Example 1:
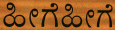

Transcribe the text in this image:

ಹೀಗೆಹೀಗೆ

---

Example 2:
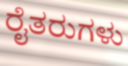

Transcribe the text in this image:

ರೈತರುಗಳು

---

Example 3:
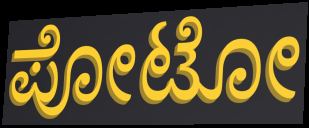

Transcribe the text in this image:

ಪೋಟೋ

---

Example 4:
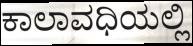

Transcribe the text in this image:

ಕಾಲಾವಧಿಯಲ್ಲಿ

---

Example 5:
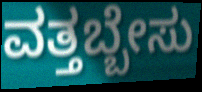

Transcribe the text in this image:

ವತ್ತಬ್ಬೇಸು